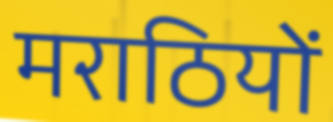
मराठियों